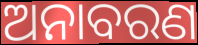
ଅନାବରଣ